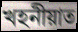
খহনীয়াত